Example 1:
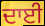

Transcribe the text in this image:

ਦਾਈ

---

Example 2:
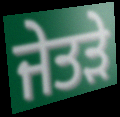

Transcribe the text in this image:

ਜੇਤੜੇ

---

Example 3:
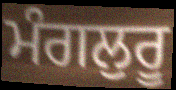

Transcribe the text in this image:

ਮੰਗਲੁਰੂ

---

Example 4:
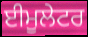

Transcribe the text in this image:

ਈਮੂਲੇਟਰ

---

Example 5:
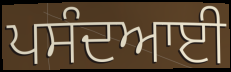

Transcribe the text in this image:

ਪਸੰਦਆਈ